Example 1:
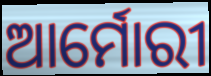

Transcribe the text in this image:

ଆର୍ମୋରୀ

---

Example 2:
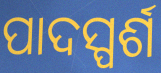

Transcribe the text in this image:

ପାଦସ୍ପର୍ଶ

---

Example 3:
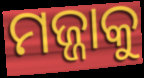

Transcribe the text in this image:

ମଜ୍ଜାକୁ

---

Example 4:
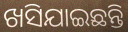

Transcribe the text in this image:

ଖସିଯାଇଛନ୍ତି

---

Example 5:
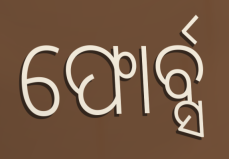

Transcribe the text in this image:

ଫୋର୍ବ୍ସ